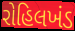
રોહિલખંડ